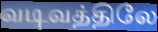
வடிவத்திலே